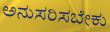
ಅನುಸರಿಸಬೇಕು